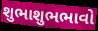
શુભાશુભભાવો